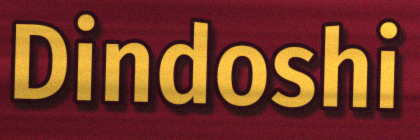
Dindoshi